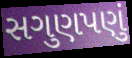
સગુણપણું